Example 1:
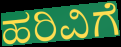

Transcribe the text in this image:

ಹರಿವಿಗೆ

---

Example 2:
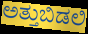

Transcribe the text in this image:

ಅತ್ತುಬಿಡಲಿ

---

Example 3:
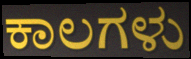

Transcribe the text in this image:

ಕಾಲಗಳು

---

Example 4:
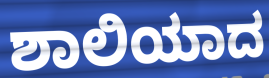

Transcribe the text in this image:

ಶಾಲಿಯಾದ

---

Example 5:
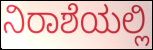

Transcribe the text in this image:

ನಿರಾಶೆಯಲ್ಲಿ